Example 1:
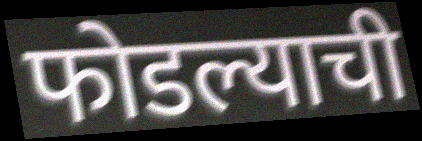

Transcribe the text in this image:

फोडल्याची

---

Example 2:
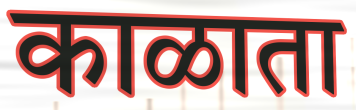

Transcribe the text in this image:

काळाता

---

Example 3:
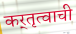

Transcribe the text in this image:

कर्तृत्वाची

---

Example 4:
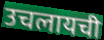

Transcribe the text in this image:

उचलायची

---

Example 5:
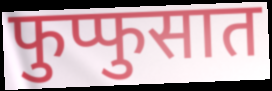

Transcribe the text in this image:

फुप्फुसात